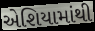
એશિયામાંથી